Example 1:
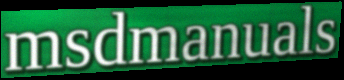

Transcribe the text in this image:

msdmanuals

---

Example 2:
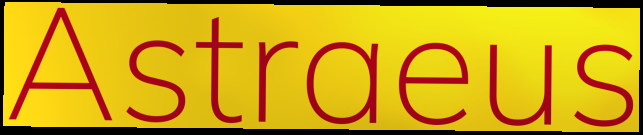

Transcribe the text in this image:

Astraeus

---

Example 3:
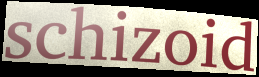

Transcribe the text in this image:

schizoid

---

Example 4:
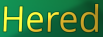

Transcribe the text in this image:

Hered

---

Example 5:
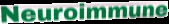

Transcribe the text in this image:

Neuroimmune